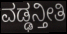
ವಡ್ಢನ್ತೀತಿ